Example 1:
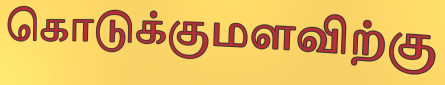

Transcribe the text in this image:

கொடுக்குமளவிற்கு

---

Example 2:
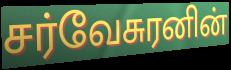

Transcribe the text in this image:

சர்வேசுரனின்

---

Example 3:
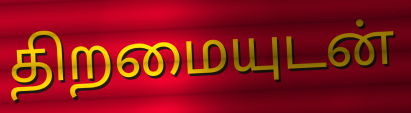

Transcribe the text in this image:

திறமையுடன்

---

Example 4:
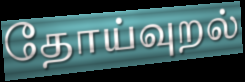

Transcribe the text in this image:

தோய்வுறல்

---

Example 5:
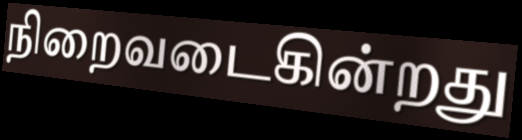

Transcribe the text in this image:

நிறைவடைகின்றது